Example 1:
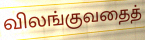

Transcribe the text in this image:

விலங்குவதைத்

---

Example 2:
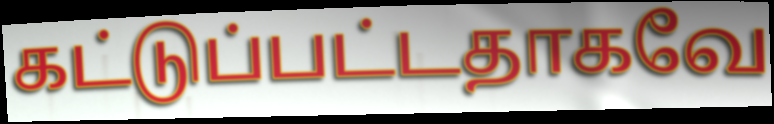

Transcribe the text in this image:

கட்டுப்பட்டதாகவே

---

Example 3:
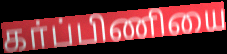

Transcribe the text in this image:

கர்ப்பிணியை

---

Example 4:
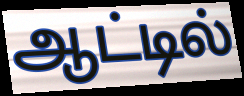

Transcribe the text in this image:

ஆட்டில்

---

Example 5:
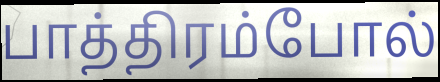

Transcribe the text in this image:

பாத்திரம்போல்